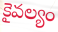
కైవల్యం